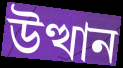
উত্থান